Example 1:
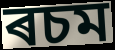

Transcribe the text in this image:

ৰচম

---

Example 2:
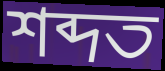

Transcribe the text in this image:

শব্দত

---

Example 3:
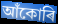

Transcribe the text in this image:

আঁকোৰি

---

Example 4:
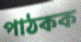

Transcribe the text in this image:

পাঠকক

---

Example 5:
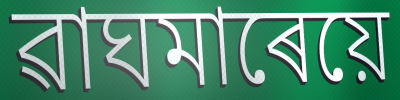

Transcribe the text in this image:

ৱাঘমাৰেয়ে